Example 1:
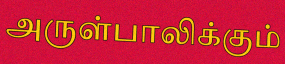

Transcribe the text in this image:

அருள்பாலிக்கும்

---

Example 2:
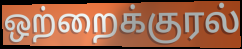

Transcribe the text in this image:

ஒற்றைக்குரல்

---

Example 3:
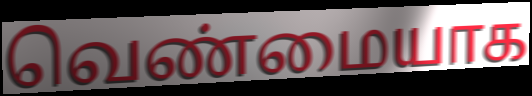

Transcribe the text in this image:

வெண்மையாக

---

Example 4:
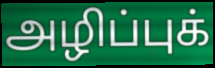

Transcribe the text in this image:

அழிப்புக்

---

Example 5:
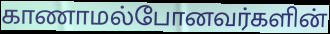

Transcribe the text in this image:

காணாமல்போனவர்களின்